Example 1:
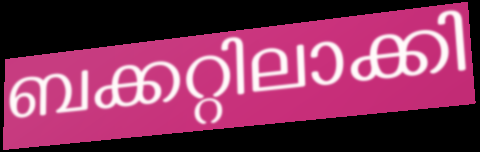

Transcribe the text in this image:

ബക്കറ്റിലാക്കി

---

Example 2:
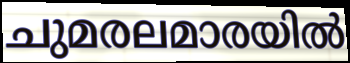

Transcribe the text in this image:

ചുമരലമാരയിൽ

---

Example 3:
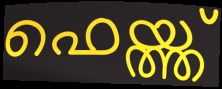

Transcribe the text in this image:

ഫെയ്ത്ത്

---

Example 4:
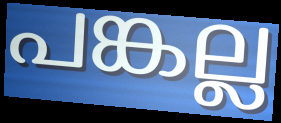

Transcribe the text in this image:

പങ്കല്ല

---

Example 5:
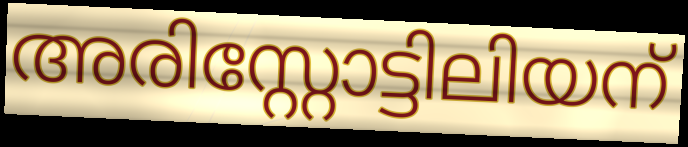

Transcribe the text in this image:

അരിസ്റ്റോട്ടിലിയന്